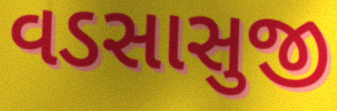
વડસાસુજી